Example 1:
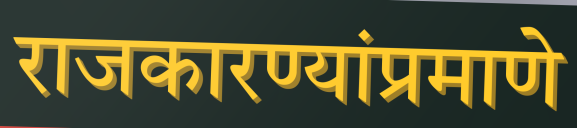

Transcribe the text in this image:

राजकारण्यांप्रमाणे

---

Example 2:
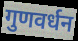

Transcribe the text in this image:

गुणवर्धन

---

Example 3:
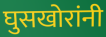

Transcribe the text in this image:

घुसखोरांनी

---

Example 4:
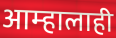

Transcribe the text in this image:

आम्हालाही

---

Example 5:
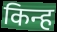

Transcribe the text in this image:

किन्ह